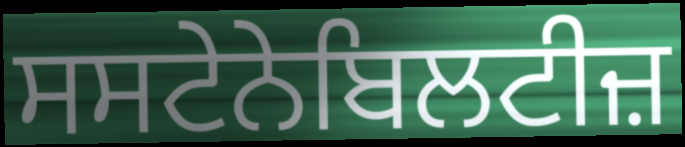
ਸਸਟੇਨੇਬਿਲਟੀਜ਼